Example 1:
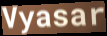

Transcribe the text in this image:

Vyasar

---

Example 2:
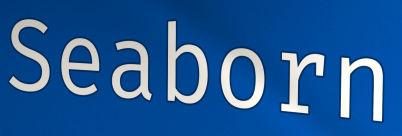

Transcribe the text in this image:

Seaborn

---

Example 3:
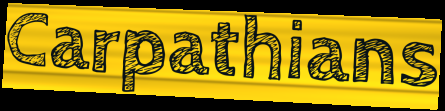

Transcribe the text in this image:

Carpathians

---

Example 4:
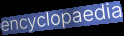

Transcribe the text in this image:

encyclopaedia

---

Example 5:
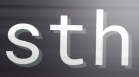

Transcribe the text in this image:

sth